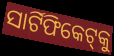
ସାର୍ଟିଫିକେଟ୍‌କୁ